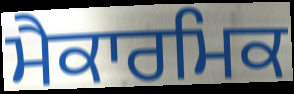
ਮੈਕਾਰਮਿਕ